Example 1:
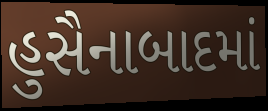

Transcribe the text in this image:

હુસૈનાબાદમાં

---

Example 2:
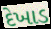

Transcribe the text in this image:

દેખાડ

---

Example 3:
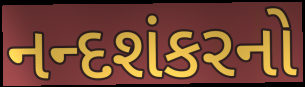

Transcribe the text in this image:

નન્દશંકરનો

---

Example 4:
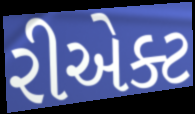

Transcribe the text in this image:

રીએક્ટ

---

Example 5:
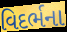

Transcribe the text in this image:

વિદર્ભના